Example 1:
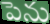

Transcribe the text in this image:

పెను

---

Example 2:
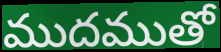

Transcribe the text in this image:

ముదముతో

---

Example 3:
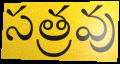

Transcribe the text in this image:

సత్రవు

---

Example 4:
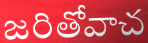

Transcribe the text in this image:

జరితోవాచ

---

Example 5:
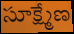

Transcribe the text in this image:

సూక్ష్మేణ